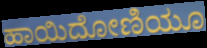
ಹಾಯಿದೋಣಿಯೂ